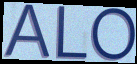
ALO